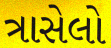
ત્રાસેલો